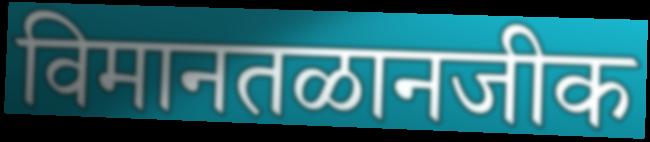
विमानतळानजीक